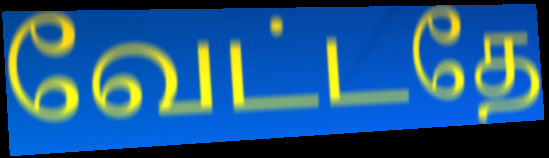
வேட்டதே